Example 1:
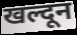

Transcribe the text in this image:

खल्दून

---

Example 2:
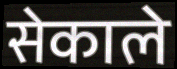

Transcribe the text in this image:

सेकाले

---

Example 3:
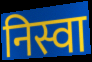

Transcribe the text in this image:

निस्वा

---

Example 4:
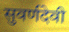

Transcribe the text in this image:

सुवर्णदेवी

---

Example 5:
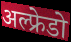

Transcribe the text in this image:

अल्फ्रेडो